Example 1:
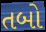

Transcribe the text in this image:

તબો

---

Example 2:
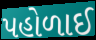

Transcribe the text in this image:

પહોળાઈ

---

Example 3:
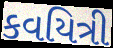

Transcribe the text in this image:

કવયિત્રી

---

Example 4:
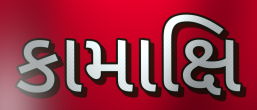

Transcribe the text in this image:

કામાક્ષિ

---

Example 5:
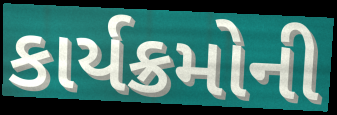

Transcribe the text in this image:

કાર્યક્રમોની